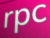
rpc